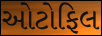
ઓટોફિલ